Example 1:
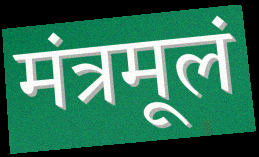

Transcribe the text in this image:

मंत्रमूलं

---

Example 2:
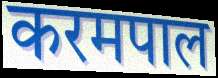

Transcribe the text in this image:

करमपाल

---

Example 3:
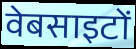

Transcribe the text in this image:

वेबसाइटों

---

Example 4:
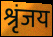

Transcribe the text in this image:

श्रृंजय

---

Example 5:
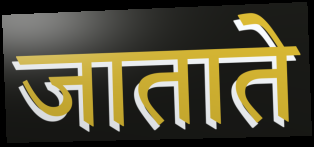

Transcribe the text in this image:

जाताते